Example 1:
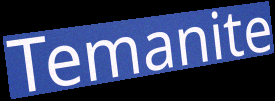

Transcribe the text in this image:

Temanite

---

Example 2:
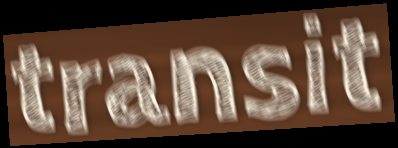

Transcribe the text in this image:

transit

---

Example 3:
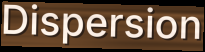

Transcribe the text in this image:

Dispersion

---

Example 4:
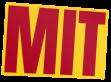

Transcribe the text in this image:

MIT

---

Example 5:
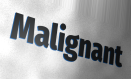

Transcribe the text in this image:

Malignant